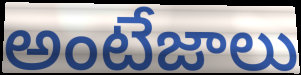
అంటేజాలు